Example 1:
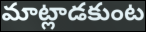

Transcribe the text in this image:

మాట్లాడకుంట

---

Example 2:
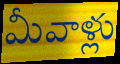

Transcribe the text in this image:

మీవాళ్లు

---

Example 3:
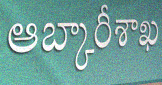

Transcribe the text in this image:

ఆబ్కారీశాఖ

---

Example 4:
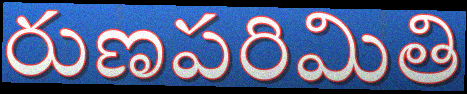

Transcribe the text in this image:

రుణపరిమితి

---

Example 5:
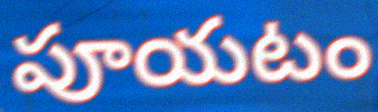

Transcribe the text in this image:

పూయటం